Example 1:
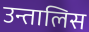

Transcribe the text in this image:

उन्तालिस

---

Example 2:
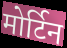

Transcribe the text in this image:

मोर्टिन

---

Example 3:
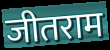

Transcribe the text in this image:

जीतराम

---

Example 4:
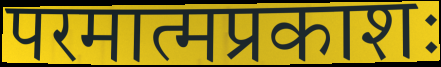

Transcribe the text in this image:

परमात्मप्रकाशः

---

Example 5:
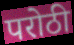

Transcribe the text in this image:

परोठी